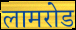
लामरोड